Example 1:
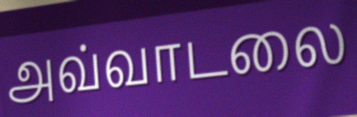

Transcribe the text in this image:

அவ்வாடலை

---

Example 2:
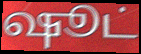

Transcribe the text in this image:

ஷூட்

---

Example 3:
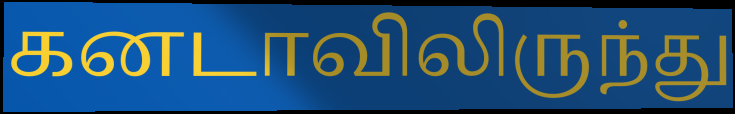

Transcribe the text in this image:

கனடாவிலிருந்து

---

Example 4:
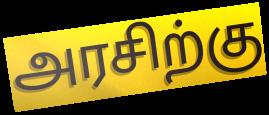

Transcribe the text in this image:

அரசிற்கு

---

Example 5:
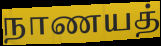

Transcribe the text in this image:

நாணயத்